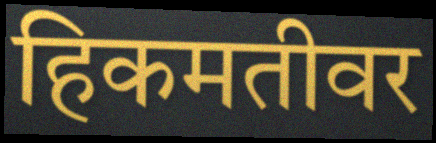
हिकमतीवर